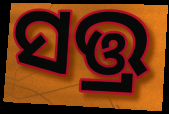
ସତ୍ତ୍ର